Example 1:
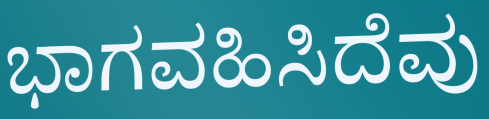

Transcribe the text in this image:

ಭಾಗವಹಿಸಿದೆವು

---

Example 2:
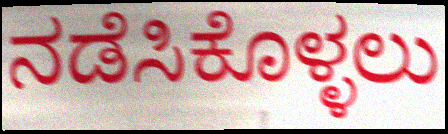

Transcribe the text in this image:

ನಡೆಸಿಕೊಳ್ಳಲು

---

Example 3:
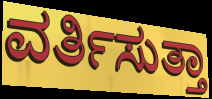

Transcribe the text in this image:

ವರ್ತಿಸುತ್ತಾ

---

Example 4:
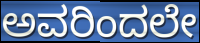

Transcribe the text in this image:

ಅವರಿಂದಲೇ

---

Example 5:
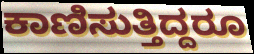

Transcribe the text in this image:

ಕಾಣಿಸುತ್ತಿದ್ದರೂ